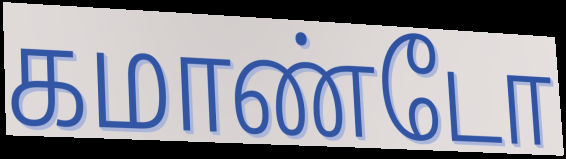
கமாண்டோ